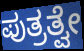
ಪುತ್ರತ್ವೇ